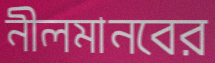
নীলমানবের